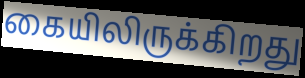
கையிலிருக்கிறது